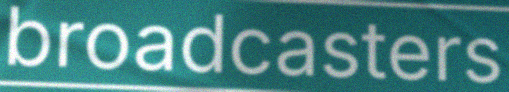
broadcasters